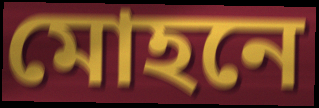
মোহনে